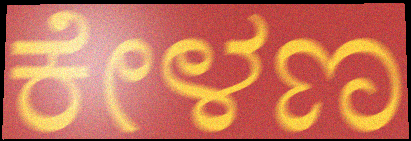
ಕೇಳಣ